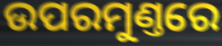
ଉପରମୁଣ୍ତରେ